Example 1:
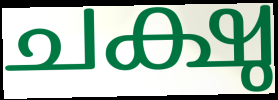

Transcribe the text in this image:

ചക്ഷു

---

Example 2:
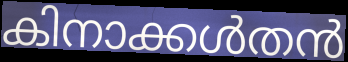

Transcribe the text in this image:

കിനാക്കൾതൻ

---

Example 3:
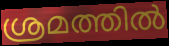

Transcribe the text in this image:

ശ്രമത്തിൽ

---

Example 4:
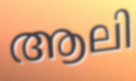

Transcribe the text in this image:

ആലി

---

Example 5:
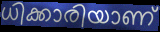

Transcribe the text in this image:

ധിക്കാരിയാണ്